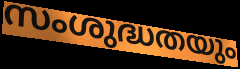
സംശുദ്ധതയും